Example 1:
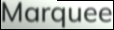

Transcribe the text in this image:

Marquee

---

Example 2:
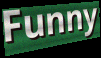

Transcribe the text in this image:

Funny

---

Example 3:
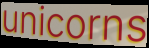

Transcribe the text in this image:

unicorns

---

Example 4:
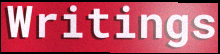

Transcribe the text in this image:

Writings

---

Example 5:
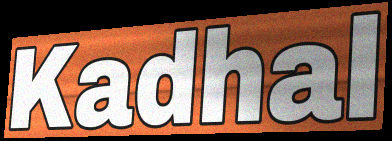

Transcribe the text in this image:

Kadhal